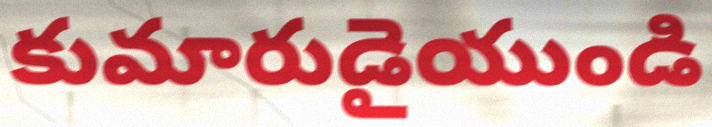
కుమారుడైయుండి